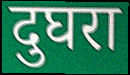
दुघरा